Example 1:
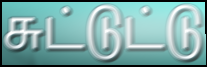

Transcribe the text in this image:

சுட்டுட்டு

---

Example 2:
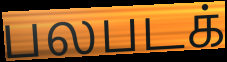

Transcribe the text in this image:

பலபடக்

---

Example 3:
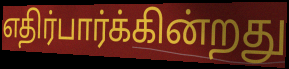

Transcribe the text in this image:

எதிர்பார்க்கின்றது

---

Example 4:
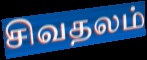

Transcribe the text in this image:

சிவதலம்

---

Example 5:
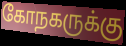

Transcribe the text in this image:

கோநகருக்கு